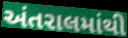
અંતરાલમાંથી